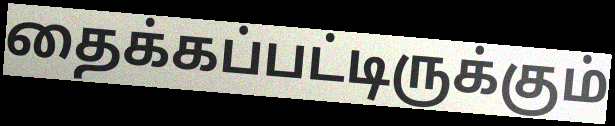
தைக்கப்பட்டிருக்கும்